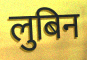
लुबिन